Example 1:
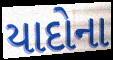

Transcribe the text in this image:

યાદોના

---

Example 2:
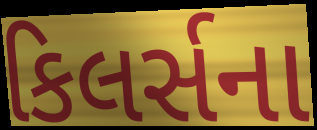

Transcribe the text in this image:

કિલર્સના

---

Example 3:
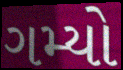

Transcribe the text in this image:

ગમ્યો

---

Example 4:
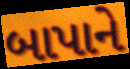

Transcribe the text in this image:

બાપાને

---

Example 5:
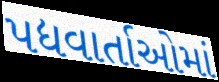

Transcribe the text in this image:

પદ્યવાર્તાઓમાં